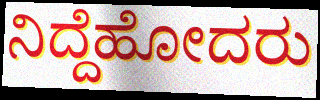
ನಿದ್ದೆಹೋದರು